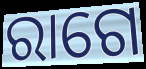
ରାଗେ